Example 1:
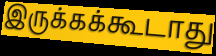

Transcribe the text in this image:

இருக்கக்கூடாது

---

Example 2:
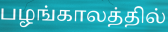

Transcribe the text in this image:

பழங்காலத்தில்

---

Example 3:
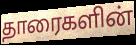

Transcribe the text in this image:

தாரைகளின்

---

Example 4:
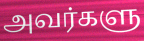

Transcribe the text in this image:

அவர்களு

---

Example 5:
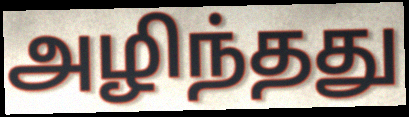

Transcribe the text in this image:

அழிந்தது